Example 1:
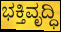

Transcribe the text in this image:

ಭಕ್ತಿವೃದ್ಧಿ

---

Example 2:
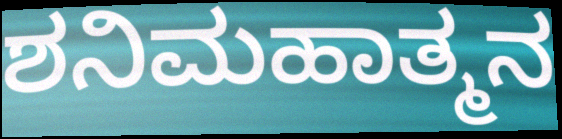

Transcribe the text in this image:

ಶನಿಮಹಾತ್ಮನ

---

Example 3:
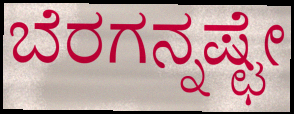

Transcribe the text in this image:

ಬೆರಗನ್ನಷ್ಟೇ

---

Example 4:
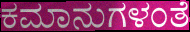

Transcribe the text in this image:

ಕಮಾನುಗಳಂತೆ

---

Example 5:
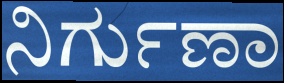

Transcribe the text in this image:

ನಿರ್ಗುಣಾ